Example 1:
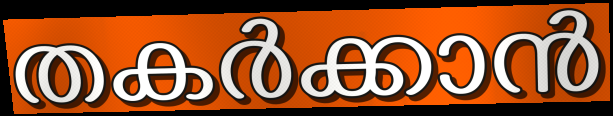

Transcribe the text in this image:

തകർക്കാൻ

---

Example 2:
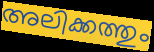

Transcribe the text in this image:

അലിക്കത്തും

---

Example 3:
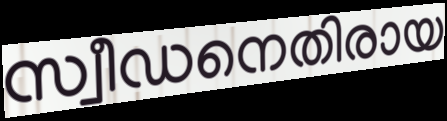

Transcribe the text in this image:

സ്വീഡനെതിരായ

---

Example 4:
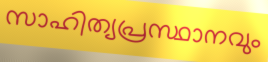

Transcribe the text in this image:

സാഹിത്യപ്രസ്ഥാനവും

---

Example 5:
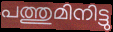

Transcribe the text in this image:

പത്തുമിനിട്ടു